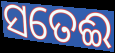
ସତେଈ